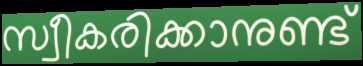
സ്വീകരിക്കാനുണ്ട്